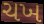
ચખ